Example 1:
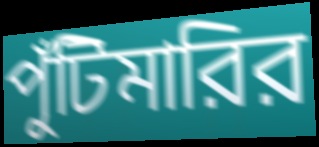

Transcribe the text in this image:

পুঁটিমারির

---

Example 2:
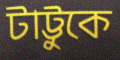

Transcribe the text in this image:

টাট্টুকে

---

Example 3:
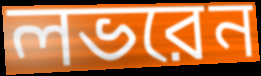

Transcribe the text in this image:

লভরেন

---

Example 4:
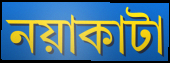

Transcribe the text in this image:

নয়াকাটা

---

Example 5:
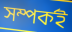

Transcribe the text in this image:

সম্পর্কই